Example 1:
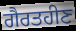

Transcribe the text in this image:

ਗੈਰਤਹੀਣ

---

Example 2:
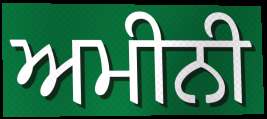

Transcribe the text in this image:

ਅਮੀਨੀ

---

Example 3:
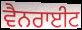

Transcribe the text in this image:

ਵੈਨਰਾਈਟ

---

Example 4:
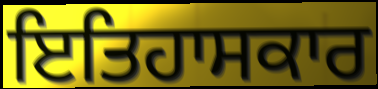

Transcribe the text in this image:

ਇਤਿਹਾਸਕਾਰ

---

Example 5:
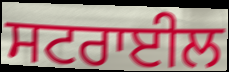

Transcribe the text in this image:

ਸਟਰਾਈਲ